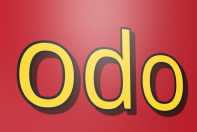
odo